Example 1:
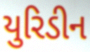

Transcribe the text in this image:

યુરિડીન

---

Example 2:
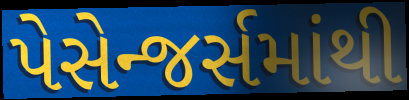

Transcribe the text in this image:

પેસેન્જર્સમાંથી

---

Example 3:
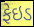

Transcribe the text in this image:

ફેઇડ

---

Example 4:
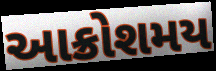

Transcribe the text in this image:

આક્રોશમય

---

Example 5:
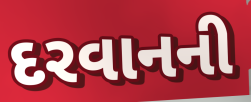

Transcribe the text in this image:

દરવાનની